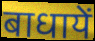
बाधायें